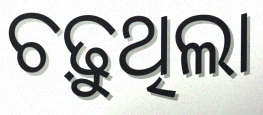
ଚଢ଼ୁଥିଲା